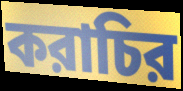
করাচির